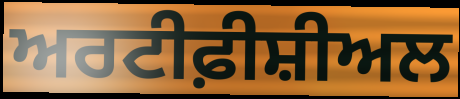
ਅਰਟੀਫ਼ੀਸ਼ੀਅਲ